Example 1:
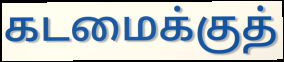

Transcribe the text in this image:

கடமைக்குத்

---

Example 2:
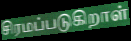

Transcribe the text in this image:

சிரமப்படுகிறாள்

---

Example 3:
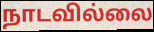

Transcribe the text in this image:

நாடவில்லை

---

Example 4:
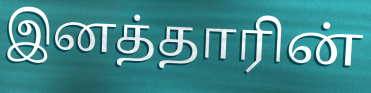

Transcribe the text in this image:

இனத்தாரின்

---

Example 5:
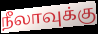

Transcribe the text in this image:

நீலாவுக்கு